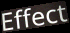
Effect